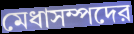
মেধাসম্পদের